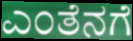
ಎಂತೆನಗೆ